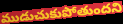
ముడుచుకుపోతుందని